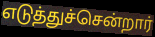
எடுத்துச்சென்றார்